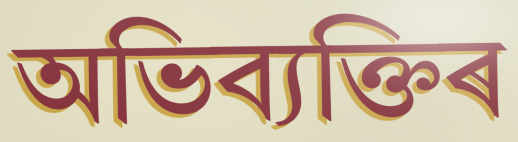
অভিব্যক্তিৰ